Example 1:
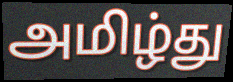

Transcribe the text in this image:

அமிழ்து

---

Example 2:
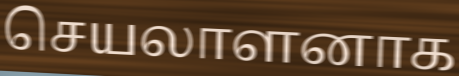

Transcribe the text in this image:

செயலாளனாக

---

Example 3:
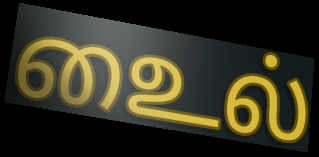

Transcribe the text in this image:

உைல்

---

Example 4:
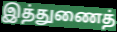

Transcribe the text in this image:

இத்துணைத்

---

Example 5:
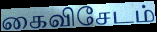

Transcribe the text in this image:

கைவிசேடம்